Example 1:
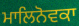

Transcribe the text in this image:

ਮਾਲਿਨੋਵਕਾ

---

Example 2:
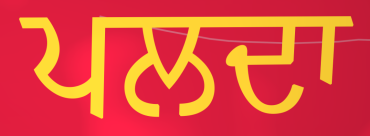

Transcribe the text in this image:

ਪਲਦਾ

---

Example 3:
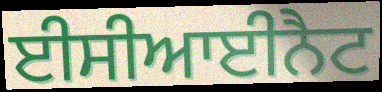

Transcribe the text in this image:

ਈਸੀਆਈਨੈਟ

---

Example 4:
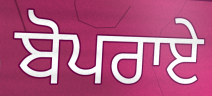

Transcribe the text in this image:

ਬੋਪਰਾਏ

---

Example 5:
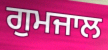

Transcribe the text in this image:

ਗੁਮਜਾਲ